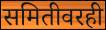
समितीवरही